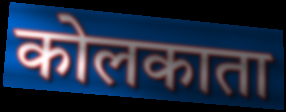
कोलकाता